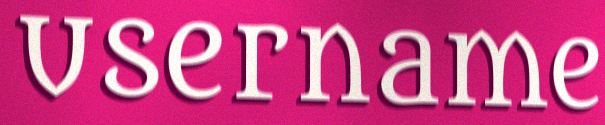
username